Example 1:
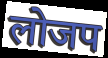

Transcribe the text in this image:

लोजप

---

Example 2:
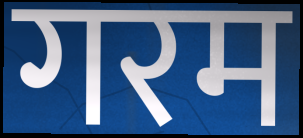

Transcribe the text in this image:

गरम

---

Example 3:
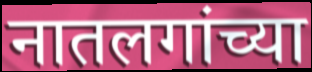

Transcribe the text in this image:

नातलगांच्या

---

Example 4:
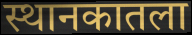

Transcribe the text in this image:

स्थानकातला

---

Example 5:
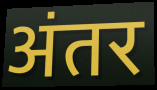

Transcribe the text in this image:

अंतर